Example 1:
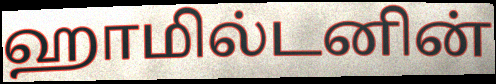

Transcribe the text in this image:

ஹாமில்டனின்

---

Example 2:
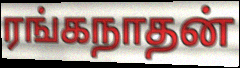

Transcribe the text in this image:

ரங்கநாதன்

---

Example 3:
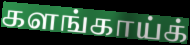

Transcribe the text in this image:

களங்காய்க்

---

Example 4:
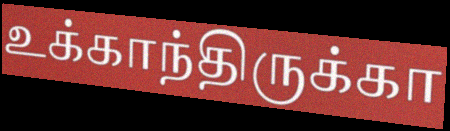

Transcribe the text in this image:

உக்காந்திருக்கா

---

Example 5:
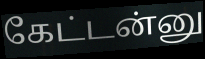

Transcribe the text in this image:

கேட்டன்னு